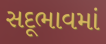
સદૂભાવમાં